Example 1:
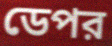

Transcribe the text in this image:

ডেপর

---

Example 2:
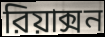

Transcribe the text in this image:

রিয়াক্সন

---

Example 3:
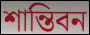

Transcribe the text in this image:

শান্তিবন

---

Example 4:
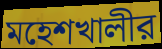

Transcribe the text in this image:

মহেশখালীর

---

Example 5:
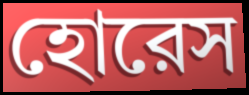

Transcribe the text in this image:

হোরেস